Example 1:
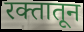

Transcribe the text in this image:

रक्तातून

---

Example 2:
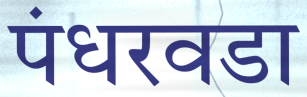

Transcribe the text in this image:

पंधरवडा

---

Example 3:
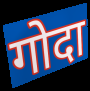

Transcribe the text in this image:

गोदा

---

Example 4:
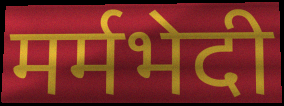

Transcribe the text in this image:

मर्मभेदी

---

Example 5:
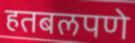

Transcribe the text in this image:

हतबलपणे